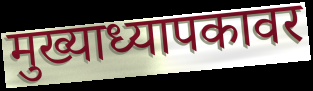
मुख्याध्यापकावर